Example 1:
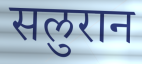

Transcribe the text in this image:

सलुरान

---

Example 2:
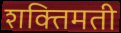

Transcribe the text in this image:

शक्तिमती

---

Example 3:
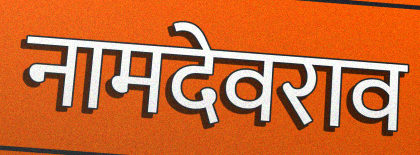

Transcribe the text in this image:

नामदेवराव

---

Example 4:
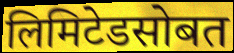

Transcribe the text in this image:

लिमिटेडसोबत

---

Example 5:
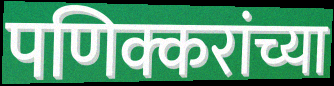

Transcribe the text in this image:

पणिक्करांच्या